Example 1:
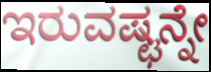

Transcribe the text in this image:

ಇರುವಷ್ಟನ್ನೇ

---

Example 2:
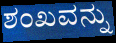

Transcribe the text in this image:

ಶಂಖವನ್ನು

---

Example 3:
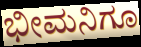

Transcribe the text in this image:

ಭೀಮನಿಗೂ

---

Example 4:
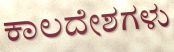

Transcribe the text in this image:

ಕಾಲದೇಶಗಳು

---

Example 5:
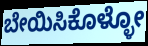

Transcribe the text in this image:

ಬೇಯಿಸಿಕೊಳ್ಳೋ